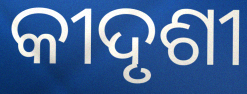
କୀଦୃଶୀ